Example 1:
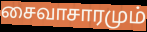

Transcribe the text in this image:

சைவாசாரமும்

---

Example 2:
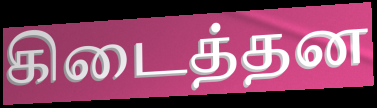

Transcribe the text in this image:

கிடைத்தன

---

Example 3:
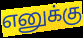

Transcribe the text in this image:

எனுக்கு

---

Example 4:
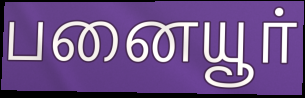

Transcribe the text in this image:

பனையூர்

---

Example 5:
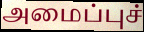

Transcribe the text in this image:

அமைப்புச்